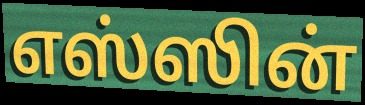
எஸ்ஸின்